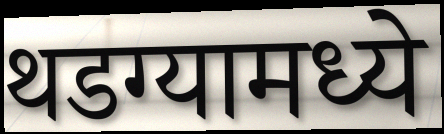
थडग्यामध्ये